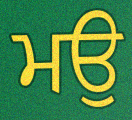
ਮਉ